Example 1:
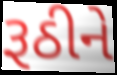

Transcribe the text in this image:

રૂઠીને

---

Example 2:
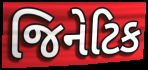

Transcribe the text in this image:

જિનેટિક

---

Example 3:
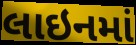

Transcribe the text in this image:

લાઇનમાં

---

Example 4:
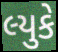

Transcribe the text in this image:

લ્યુકે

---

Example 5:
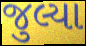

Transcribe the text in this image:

જુલ્યા